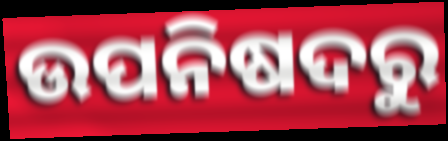
ଉପନିଷଦରୁ